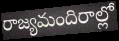
రాజ్యమందిరాల్లో